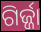
ଗିର୍ଜ୍ଜା